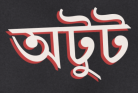
অটুট